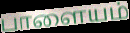
பாளையம்